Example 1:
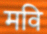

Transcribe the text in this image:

मवि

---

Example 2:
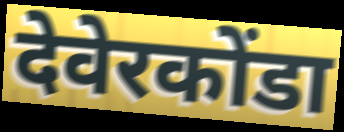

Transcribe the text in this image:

देवेरकोंडा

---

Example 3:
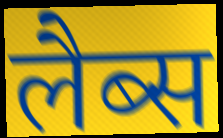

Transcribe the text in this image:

लैब्स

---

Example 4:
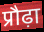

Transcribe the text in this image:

प्रौढ़ा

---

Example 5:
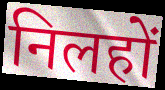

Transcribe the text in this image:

निलहों